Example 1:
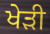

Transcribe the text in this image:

ਖੇੜੀ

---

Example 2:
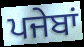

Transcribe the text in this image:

ਪਜੇਬਾਂ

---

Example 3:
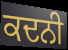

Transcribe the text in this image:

ਕਦਨੀ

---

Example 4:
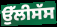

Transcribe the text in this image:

ਉੱਲੀਸੱਸ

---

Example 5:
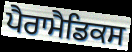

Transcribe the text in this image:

ਪੈਰਾਮੈਡਿਕਸ